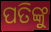
ପତିଙ୍କୁ